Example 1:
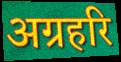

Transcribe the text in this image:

अग्रहरि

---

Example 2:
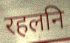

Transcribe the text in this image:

रहलनि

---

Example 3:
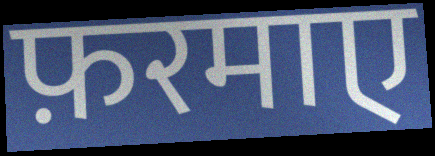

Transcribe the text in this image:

फ़रमाए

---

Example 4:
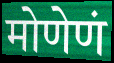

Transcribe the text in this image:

मोणेणं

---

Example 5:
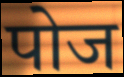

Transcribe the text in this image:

पोज